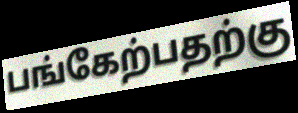
பங்கேற்பதற்கு